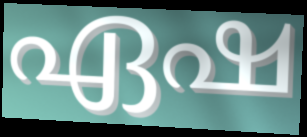
ഏഷ